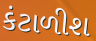
કંટાળીશ